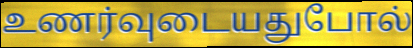
உணர்வுடையதுபோல்